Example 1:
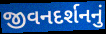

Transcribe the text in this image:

જીવનદર્શનનું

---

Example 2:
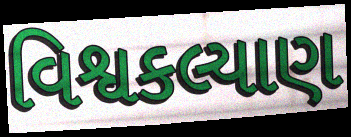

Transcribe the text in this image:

વિશ્વકલ્યાણ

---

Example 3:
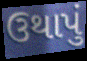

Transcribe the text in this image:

ઉથાપું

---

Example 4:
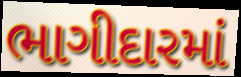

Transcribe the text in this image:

ભાગીદારમાં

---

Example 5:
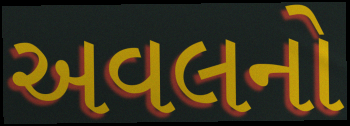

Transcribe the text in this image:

અવલનો